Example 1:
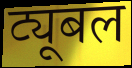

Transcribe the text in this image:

ट्यूबल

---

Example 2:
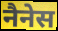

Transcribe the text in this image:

नैनेस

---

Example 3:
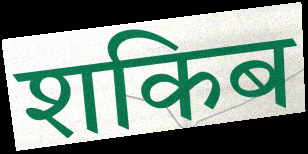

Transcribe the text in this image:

शकिब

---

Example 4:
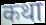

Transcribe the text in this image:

कथा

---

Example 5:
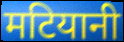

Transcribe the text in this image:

मटियानी